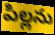
పిల్లను